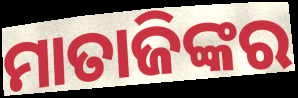
ମାତାଜିଙ୍କର